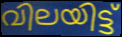
വിലയിട്ട്